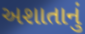
અશાતાનું